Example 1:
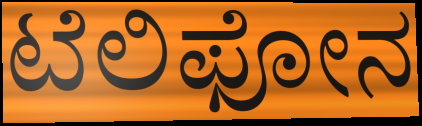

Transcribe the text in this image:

ಟೆಲಿಫೋನ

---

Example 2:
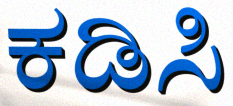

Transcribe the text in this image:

ಕಡಿಸಿ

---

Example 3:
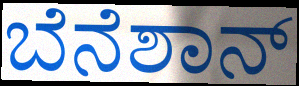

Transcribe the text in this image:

ಬೆನೆಶಾನ್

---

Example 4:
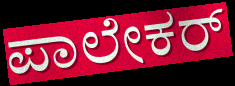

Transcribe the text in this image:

ಪಾಲೇಕರ್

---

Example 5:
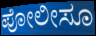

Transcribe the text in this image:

ಪೋಲೀಸೂ